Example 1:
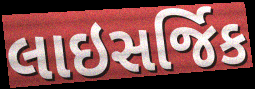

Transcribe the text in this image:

લાઇસર્જિક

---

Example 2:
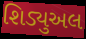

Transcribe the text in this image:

શિડ્યુઅલ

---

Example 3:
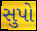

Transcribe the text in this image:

સુપો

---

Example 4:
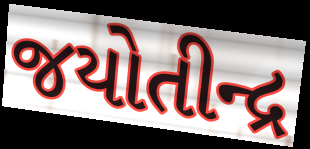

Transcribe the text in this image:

જયોતીન્દ્ર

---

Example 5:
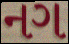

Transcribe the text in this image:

નગ